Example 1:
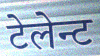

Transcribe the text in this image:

टेलेन्ट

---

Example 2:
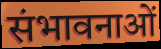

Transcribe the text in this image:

संभावनाओं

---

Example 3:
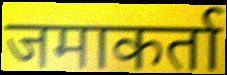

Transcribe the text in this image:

जमाकर्ता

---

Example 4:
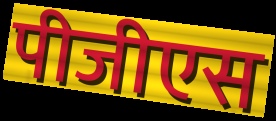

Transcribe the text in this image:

पीजीएस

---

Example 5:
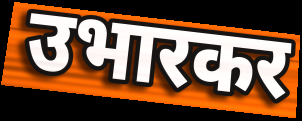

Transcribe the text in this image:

उभारकर